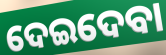
ଦେଇଦେବା